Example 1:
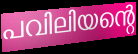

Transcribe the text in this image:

പവിലിയന്റെ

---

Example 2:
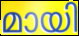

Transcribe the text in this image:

മായി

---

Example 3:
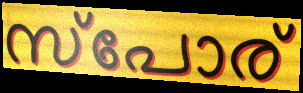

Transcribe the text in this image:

സ്പോര്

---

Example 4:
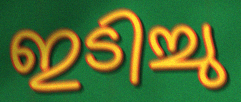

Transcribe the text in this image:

ഇടിച്ചു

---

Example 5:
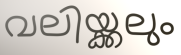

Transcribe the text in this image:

വലിയ്ക്കലും